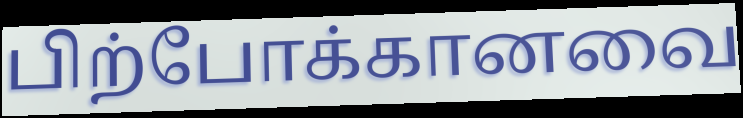
பிற்போக்கானவை